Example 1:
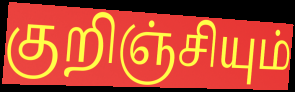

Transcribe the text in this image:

குறிஞ்சியும்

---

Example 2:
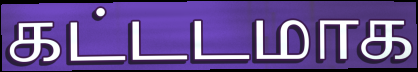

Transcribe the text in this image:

கட்டடமாக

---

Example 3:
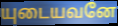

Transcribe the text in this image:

யுடையவனே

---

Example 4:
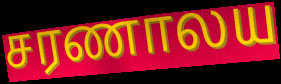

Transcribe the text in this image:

சரணாலய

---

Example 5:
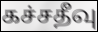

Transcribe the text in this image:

கச்சதீவு